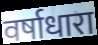
वर्षाधारा